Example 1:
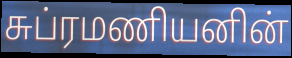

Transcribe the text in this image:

சுப்ரமணியனின்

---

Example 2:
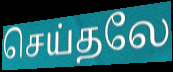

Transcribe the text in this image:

செய்தலே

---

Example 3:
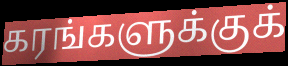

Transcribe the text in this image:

கரங்களுக்குக்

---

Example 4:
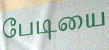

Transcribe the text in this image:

பேடியை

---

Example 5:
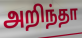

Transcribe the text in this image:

அறிந்தா